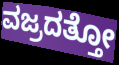
ವಜ್ರದತ್ತೋ